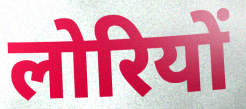
लोरियों